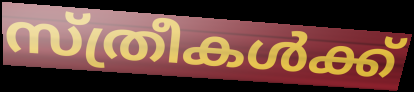
സ്ത്രീകൾക്ക്